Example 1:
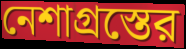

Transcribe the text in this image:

নেশাগ্রস্তের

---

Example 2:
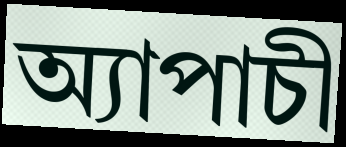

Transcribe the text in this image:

অ্যাপাচী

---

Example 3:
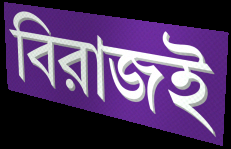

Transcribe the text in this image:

বিরাজই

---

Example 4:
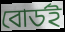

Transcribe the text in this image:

বোর্ডই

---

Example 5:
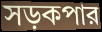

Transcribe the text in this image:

সড়কপার